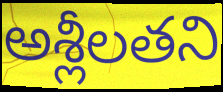
అశ్లీలతని